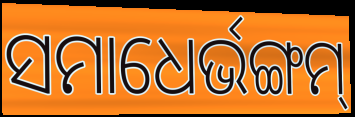
ସମାଧେର୍ଭଙ୍ଗମ୍